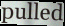
pulled